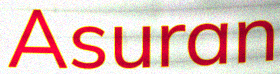
Asuran